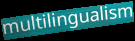
multilingualism